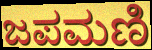
ಜಪಮಣಿ